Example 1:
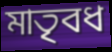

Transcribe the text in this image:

মাতৃবধ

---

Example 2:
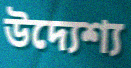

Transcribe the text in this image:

উদ্যেশ্য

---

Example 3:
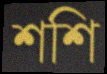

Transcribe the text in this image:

শশি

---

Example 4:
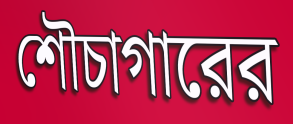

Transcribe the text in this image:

শৌচাগারের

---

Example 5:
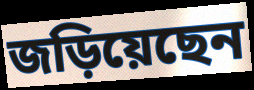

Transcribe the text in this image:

জড়িয়েছেন